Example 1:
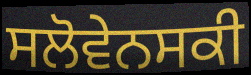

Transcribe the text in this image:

ਸਲੋਵੇਨਸਕੀ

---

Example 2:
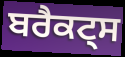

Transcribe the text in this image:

ਬਰੈਕਟ੍ਸ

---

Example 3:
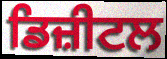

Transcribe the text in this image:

ਡਿਜ਼ੀਟਲ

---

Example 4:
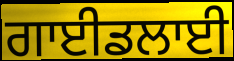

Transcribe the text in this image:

ਗਾਈਡਲਾਈ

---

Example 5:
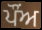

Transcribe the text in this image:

ਪੌਂਅ